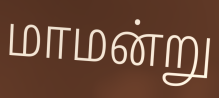
மாமன்று